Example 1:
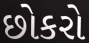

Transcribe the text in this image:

છોકરો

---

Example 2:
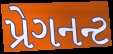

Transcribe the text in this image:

પ્રેગનન્ટ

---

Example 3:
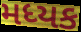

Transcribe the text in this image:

મધ્યક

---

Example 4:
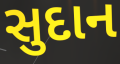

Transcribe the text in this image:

સુદાન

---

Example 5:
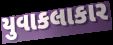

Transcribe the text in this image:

યુવાકલાકાર